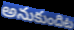
అనుకుందిట